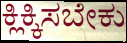
ಕ್ಲಿಕ್ಕಿಸಬೇಕು